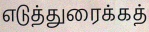
எடுத்துரைக்கத்